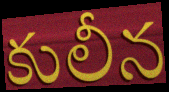
కులీన